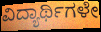
ವಿದ್ಯಾರ್ಥಿಗಳೇ